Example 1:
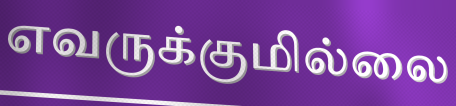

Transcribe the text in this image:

எவருக்குமில்லை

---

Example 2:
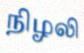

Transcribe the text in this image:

நிழலி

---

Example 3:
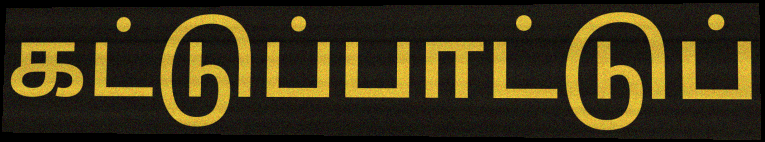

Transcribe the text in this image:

கட்டுப்பாட்டுப்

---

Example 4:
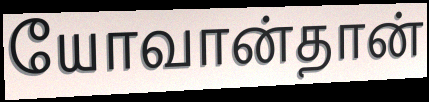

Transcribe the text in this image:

யோவான்தான்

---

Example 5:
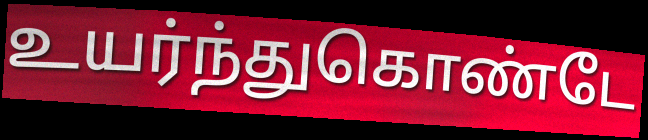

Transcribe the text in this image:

உயர்ந்துகொண்டே